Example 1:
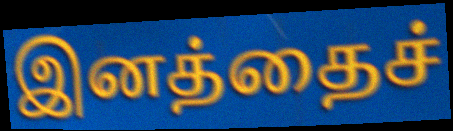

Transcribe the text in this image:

இனத்தைச்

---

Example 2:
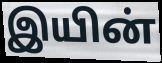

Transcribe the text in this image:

இயின்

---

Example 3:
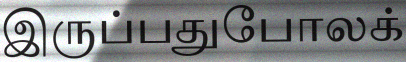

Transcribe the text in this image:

இருப்பதுபோலக்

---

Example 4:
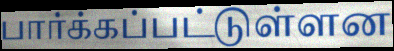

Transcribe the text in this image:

பார்க்கப்பட்டுள்ளன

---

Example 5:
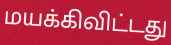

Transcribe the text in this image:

மயக்கிவிட்டது